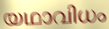
യഥാവിധം